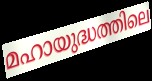
മഹായുദ്ധത്തിലെ